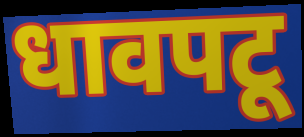
धावपटू